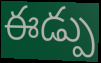
ఈడ్పు